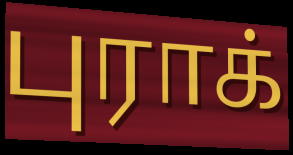
புராக்